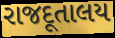
રાજદૂતાલય